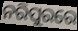
ନରିପୁରରେ